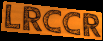
LRCCR